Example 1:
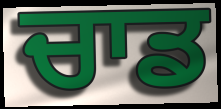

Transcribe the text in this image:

ਚਾਡ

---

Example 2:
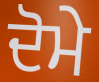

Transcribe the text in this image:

ਦੋਮੇ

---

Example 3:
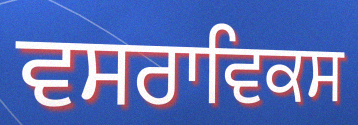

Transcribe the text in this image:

ਵਸਰਾਵਿਕਸ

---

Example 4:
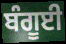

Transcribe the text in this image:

ਬੰਗੂਈ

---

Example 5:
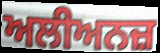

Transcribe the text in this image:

ਅਲੀਅਨਜ਼